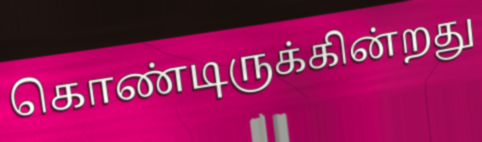
கொண்டிருக்கின்றது